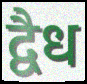
द्वैध